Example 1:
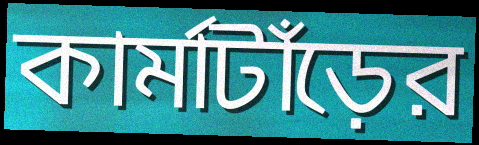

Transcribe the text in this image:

কার্মাটাঁড়ের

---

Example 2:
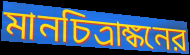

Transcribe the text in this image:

মানচিত্রাঙ্কনের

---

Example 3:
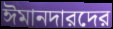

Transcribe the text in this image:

ঈমানদারদের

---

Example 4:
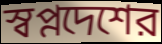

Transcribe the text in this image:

স্বপ্নদেশের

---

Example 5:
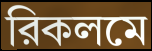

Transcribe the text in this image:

রিকলমে